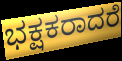
ಭಕ್ಷಕರಾದರೆ